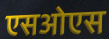
एसओएस